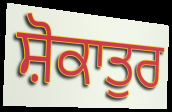
ਸ਼ੋਕਾਤੁਰ